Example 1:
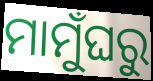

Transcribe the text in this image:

ମାମୁଁଘରୁ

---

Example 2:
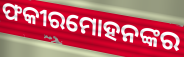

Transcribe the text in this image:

ଫକୀରମୋହନଙ୍କର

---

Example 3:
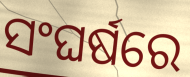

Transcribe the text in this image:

ସଂଘର୍ଷରେ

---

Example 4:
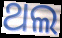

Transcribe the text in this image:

ଥଲ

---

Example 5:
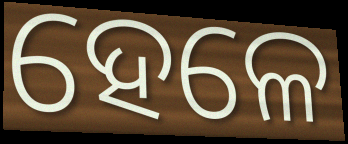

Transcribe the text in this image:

ହେଳେ